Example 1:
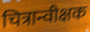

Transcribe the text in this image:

चित्रान्वीक्षक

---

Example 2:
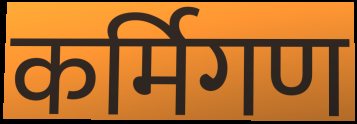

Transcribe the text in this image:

कर्मिगण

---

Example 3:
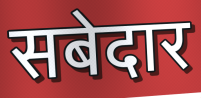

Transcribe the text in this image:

सबेदार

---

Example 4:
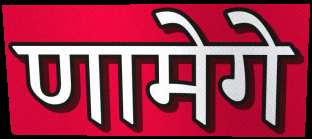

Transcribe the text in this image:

णामेगे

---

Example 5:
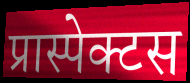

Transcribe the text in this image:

प्रास्पेक्टस